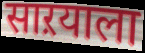
साऱयाला